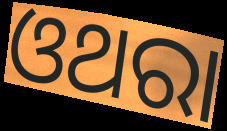
ଓଥରା